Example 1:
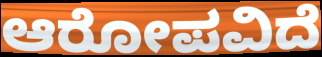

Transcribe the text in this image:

ಆರೋಪವಿದೆ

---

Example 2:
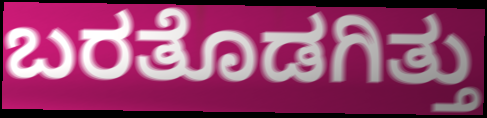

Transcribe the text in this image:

ಬರತೊಡಗಿತ್ತು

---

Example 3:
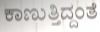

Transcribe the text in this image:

ಕಾಣುತ್ತಿದ್ದಂತೆ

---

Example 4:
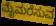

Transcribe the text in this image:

ಮೈಮರೆಸುವ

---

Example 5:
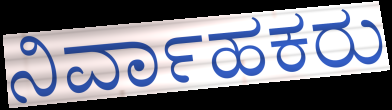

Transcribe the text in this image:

ನಿರ್ವಾಹಕರು